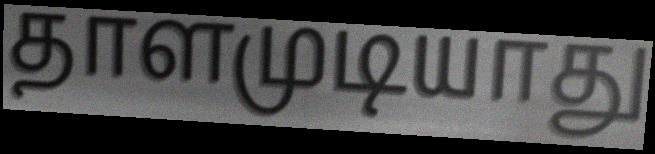
தாளமுடியாது